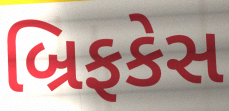
બ્રિફકેસ